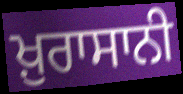
ਖ਼ੁਰਾਸਾਨੀ